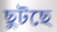
ছুটছে